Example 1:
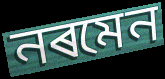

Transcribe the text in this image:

নৰমেন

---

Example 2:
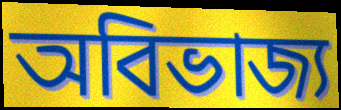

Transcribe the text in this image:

অবিভাজ্য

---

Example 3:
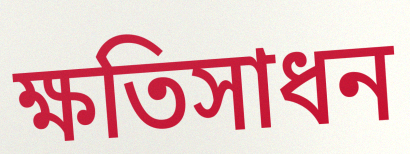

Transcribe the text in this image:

ক্ষতিসাধন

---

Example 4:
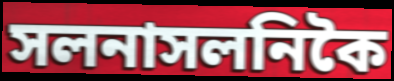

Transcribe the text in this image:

সলনাসলনিকৈ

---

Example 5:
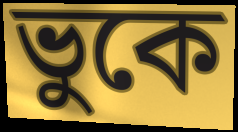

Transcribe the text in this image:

ভুকে